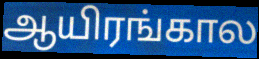
ஆயிரங்கால